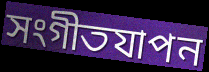
সংগীতযাপন